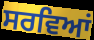
ਸਰਵਿਆਂ